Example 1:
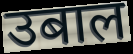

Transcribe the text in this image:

उबाल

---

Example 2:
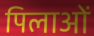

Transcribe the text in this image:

पिलाओं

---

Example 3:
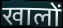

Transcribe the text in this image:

खालों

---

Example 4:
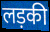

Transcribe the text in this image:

लड़की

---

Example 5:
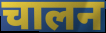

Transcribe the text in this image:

चालन